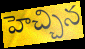
హెచ్చిన